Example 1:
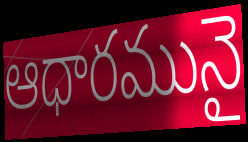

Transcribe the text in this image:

ఆధారమునై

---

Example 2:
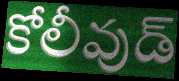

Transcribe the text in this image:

కోలీవుడ్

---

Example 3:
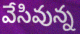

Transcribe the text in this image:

వేసివున్న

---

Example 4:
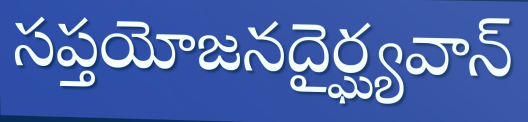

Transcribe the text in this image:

సప్తయోజనదైర్ఘ్యవాన్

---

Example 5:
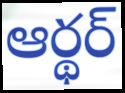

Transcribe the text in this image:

ఆర్థర్